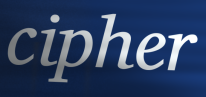
cipher